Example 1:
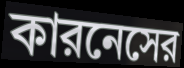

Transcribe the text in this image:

কারনেসের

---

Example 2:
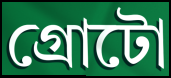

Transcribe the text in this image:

গ্রোটো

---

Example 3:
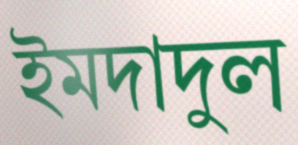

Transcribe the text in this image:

ইমদাদুল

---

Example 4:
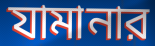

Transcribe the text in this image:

যামানার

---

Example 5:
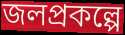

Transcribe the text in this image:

জলপ্রকল্পে